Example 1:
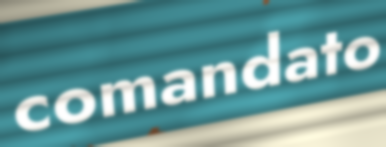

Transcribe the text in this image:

comandato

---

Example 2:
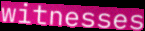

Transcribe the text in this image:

witnesses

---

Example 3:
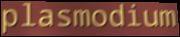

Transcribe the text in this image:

plasmodium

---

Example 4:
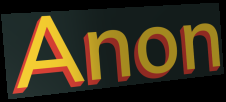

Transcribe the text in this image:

Anon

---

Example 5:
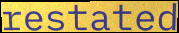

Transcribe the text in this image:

restated